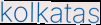
kolkatas